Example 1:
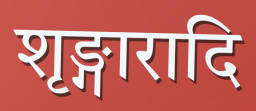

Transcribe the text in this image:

शृङ्गारादि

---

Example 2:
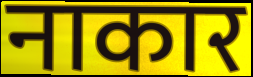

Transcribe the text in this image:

नाकार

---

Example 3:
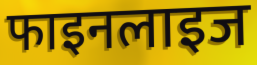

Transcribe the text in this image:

फाइनलाइज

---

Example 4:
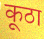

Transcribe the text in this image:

कूठा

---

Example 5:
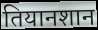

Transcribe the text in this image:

तियानशान